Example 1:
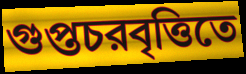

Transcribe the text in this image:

গুপ্তচরবৃত্তিতে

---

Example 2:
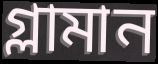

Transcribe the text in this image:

গ্লামান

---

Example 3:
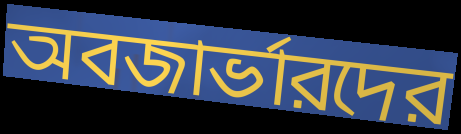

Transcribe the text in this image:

অবজার্ভারদের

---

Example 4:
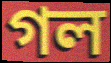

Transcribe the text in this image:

গল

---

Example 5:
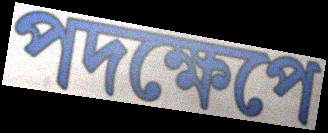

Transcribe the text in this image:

পদক্ষেপে